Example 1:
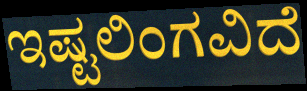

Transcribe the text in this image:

ಇಷ್ಟಲಿಂಗವಿದೆ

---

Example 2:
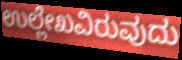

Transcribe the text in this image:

ಉಲ್ಲೇಖವಿರುವುದು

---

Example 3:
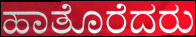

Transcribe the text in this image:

ಹಾತೊರೆದರು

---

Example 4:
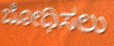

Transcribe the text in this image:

ಬೋಧಿಸಲು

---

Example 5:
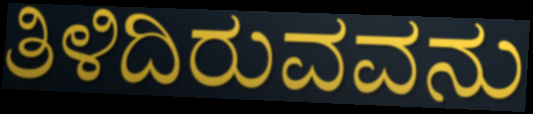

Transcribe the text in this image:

ತಿಳಿದಿರುವವನು